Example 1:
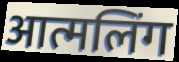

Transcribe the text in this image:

आत्मलिंग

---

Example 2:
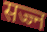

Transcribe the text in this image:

सज्ज्न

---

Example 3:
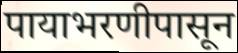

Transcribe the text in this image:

पायाभरणीपासून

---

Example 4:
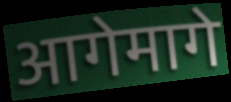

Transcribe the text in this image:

आगेमागे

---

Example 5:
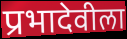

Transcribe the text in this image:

प्रभादेवीला